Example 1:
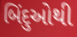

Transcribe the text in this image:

બિંદુઓથી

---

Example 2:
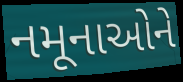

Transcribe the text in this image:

નમૂનાઓને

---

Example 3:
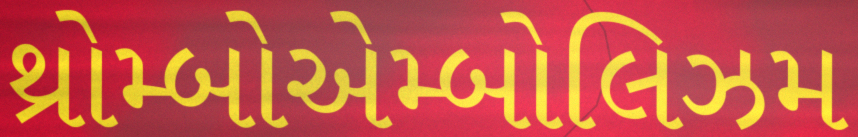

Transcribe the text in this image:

થ્રોમ્બોએમ્બોલિઝમ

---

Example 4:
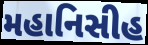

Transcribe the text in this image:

મહાનિસીહ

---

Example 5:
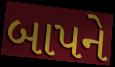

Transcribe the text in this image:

બાપને